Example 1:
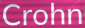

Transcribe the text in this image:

Crohn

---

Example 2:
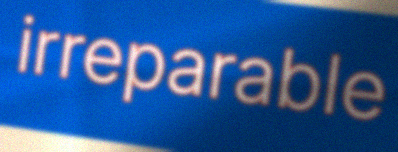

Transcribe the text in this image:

irreparable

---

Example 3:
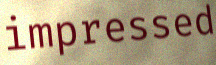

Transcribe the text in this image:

impressed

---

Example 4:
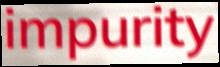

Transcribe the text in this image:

impurity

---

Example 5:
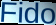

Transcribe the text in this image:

Fido